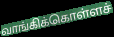
வாங்கிக்கொள்ளச்